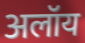
अलॉय